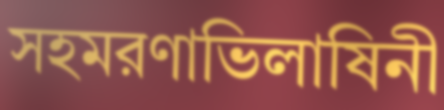
সহমরণাভিলাষিনী